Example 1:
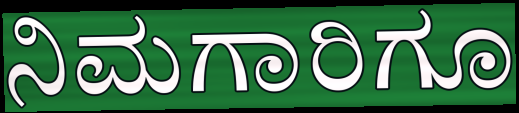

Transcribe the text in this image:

ನಿಮಗಾರಿಗೂ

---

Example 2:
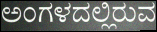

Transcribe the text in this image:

ಅಂಗಳದಲ್ಲಿರುವ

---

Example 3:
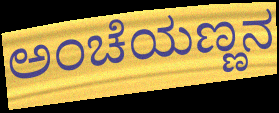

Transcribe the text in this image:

ಅಂಚೆಯಣ್ಣನ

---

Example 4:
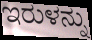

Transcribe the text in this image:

ಇರುಳನ್ನು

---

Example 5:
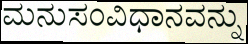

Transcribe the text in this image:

ಮನುಸಂವಿಧಾನವನ್ನು